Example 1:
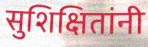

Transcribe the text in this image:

सुशिक्षितांनी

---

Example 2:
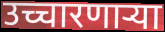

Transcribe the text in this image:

उच्चारणाऱ्या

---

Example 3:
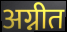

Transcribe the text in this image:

अग्नीत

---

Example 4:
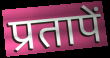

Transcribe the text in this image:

प्रतापें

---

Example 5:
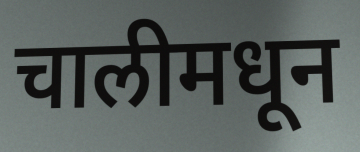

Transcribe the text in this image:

चालीमधून